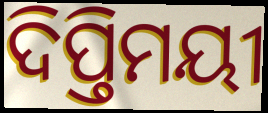
ଦିପ୍ତିମୟୀ